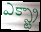
ఎక్స్ట్రా